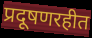
प्रदूषणरहीत